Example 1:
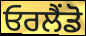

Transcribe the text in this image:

ਓਰਲੈਂਡੋ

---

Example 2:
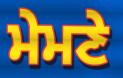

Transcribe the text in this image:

ਮੇਮਣੇ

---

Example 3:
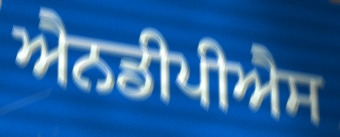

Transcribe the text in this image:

ਐਨਡੀਪੀਐਸ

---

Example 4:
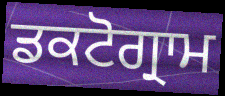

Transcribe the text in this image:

ਡਕਟੋਗ੍ਰਾਮ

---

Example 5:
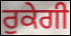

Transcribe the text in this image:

ਰੁਕੇਗੀ